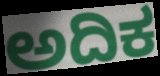
ಅದಿಕ